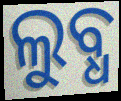
ଲୁବ୍ଧ